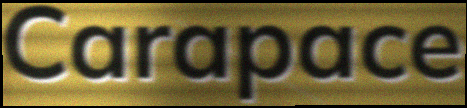
Carapace